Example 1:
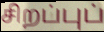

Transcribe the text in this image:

சிறப்புப்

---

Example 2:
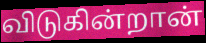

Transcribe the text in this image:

விடுகின்றான்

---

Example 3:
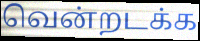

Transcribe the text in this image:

வென்றடக்க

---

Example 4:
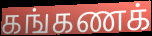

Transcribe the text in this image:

கங்கணக்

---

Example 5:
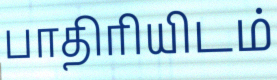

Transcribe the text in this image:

பாதிரியிடம்